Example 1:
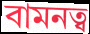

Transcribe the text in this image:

বামনত্ব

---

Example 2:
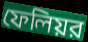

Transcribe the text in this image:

ফেলিয়র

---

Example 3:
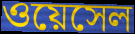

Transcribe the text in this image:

ওয়েসেল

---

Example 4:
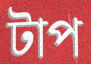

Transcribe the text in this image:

টাপ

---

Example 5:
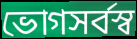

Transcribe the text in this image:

ভোগসর্বস্ব